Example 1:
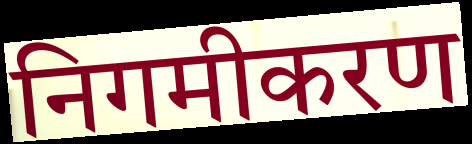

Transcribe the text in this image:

निगमीकरण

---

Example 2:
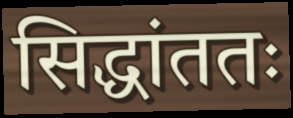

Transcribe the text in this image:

सिद्धांततः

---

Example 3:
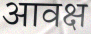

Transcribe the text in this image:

आवक्ष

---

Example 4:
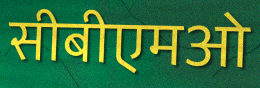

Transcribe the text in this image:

सीबीएमओ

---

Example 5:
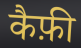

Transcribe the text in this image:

कैफ़ी